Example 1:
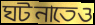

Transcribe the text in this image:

ঘটনাতেও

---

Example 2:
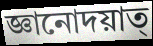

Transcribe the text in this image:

জ্ঞানোদয়াত্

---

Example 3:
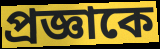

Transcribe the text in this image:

প্রজ্ঞাকে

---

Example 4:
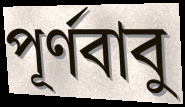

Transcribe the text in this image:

পূর্ণবাবু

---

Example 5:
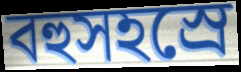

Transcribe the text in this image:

বহুসহস্রে